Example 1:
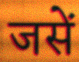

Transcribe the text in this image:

जसें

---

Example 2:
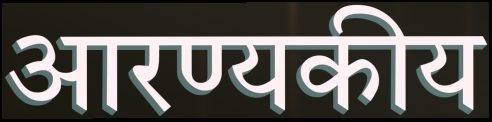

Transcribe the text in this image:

आरण्यकीय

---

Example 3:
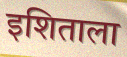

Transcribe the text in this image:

इशिताला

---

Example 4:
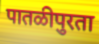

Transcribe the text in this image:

पातळीपुरता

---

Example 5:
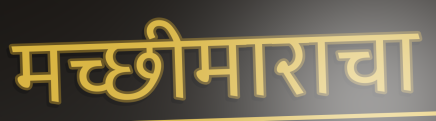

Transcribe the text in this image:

मच्छीमाराचा